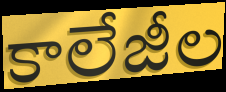
కాలేజీల